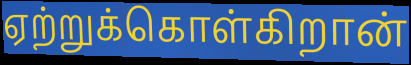
ஏற்றுக்கொள்கிறான்